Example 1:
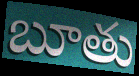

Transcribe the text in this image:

బూతు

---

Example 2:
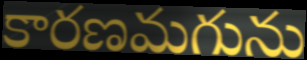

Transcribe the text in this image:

కారణమగును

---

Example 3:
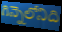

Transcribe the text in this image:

గిన్నెలోనిది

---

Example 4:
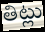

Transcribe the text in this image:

తిట్లు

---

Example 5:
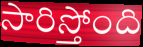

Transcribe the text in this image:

సారిస్తోంది